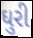
ઘુરી